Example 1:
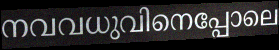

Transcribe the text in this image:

നവവധുവിനെപ്പോലെ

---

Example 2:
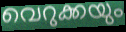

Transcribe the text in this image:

വെറുക്കയും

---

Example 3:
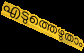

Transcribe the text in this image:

എടുത്തെഴുതാം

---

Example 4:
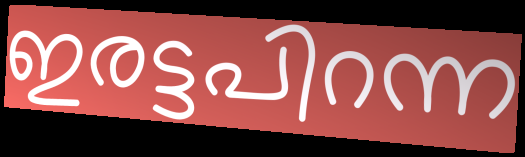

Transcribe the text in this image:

ഇരട്ടപിറന്ന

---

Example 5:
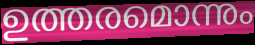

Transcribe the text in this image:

ഉത്തരമൊന്നും